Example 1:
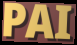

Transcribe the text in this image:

PAI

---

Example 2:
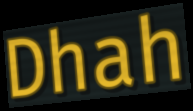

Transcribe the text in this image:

Dhah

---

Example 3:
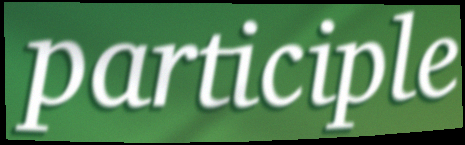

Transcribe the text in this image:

participle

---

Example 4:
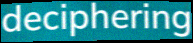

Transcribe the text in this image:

deciphering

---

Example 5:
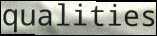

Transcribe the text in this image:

qualities